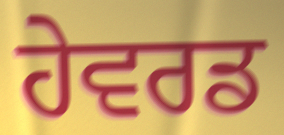
ਹੇਵਰਡ